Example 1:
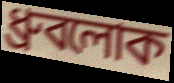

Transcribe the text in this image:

ধ্রুবলোক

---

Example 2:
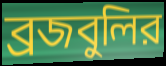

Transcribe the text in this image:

ব্রজবুলির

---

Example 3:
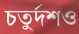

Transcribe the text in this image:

চতুর্দশও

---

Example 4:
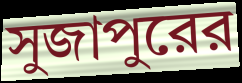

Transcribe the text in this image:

সুজাপুরের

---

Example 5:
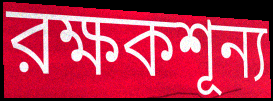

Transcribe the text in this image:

রক্ষকশূন্য